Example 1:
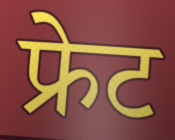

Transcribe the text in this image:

फ्रेट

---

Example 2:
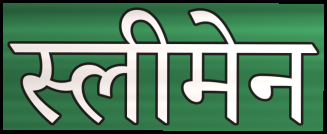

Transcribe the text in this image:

स्लीमेन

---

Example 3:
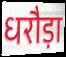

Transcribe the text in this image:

धरौड़ा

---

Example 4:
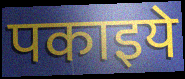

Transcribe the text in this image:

पकाइये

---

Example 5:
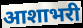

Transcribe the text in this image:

आशाभरी